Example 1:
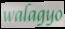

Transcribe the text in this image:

walagyo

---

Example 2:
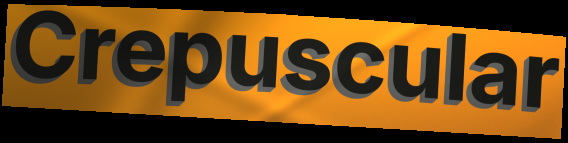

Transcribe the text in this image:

Crepuscular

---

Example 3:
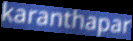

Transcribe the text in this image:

karanthapar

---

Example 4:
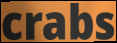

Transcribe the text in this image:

crabs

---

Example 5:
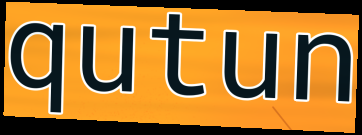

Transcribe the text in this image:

qutun